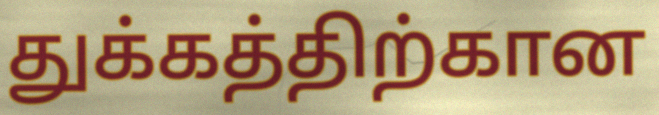
துக்கத்திற்கான